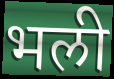
भली